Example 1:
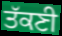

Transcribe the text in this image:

ਤੱਕਣੀ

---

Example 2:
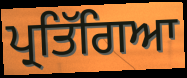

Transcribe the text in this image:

ਪ੍ਰਤਿੱਗਿਆ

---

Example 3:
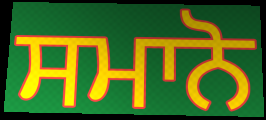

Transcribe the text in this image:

ਸਮਾਨੋ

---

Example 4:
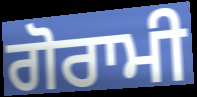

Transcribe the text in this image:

ਗੋਰਾਮੀ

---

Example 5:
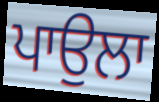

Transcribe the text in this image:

ਪਾਉਲਾ